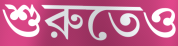
শুরুতেও